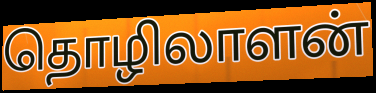
தொழிலாளன்